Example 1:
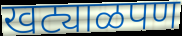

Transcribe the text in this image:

खट्याळपण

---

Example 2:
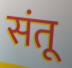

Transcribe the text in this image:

संतू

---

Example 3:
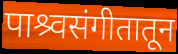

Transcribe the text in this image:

पाश्र्वसंगीतातून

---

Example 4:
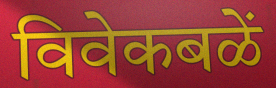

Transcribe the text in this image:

विवेकबळें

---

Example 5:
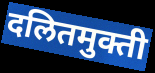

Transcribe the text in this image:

दलितमुक्ती